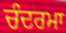
ਚੰਦਰਮਾ